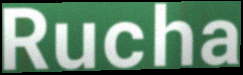
Rucha